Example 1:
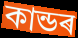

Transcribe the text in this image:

কান্ডৰ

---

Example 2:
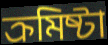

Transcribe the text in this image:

ক্ৰমিষ্টা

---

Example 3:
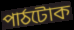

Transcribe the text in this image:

পাঠটোক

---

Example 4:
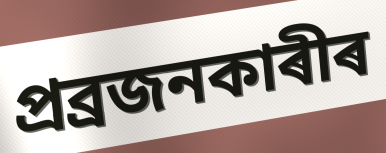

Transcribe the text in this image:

প্ৰব্ৰজনকাৰীৰ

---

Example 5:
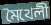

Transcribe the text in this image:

মৈথেলী